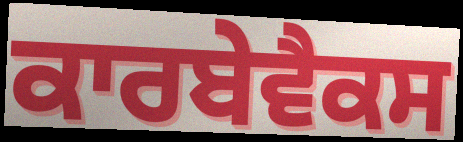
ਕਾਰਬੇਵੈਕਸ